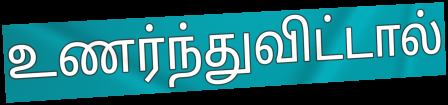
உணர்ந்துவிட்டால்